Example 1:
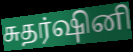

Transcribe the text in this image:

சுதர்ஷினி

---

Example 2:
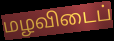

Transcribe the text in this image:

மழவிடைப்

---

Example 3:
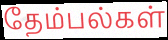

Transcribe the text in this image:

தேம்பல்கள்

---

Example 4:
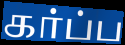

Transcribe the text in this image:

கர்ப்ப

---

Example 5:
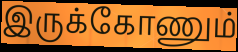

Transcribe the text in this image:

இருக்கோணும்